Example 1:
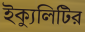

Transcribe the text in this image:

ইক্যুলিটির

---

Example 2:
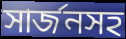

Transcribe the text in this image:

সার্জনসহ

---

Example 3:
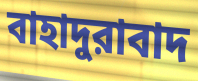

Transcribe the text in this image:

বাহাদুরাবাদ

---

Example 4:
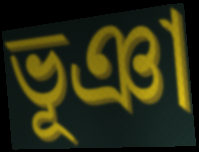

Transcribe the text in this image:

ভূঞা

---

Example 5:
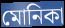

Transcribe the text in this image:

মোনিকা